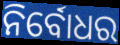
ନିର୍ବୋଧର